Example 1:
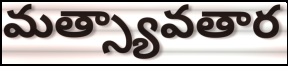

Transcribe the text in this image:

మత్స్యావతార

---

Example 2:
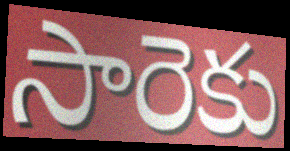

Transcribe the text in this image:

సారెకు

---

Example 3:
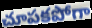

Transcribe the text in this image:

చూపకపోగా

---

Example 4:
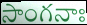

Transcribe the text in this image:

సాంగనాః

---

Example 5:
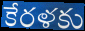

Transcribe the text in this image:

కేరళకు